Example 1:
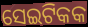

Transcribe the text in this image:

ସେଇଟିକକ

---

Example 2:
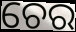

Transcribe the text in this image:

ଚେର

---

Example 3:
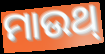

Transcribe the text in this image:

ମାଉଥ୍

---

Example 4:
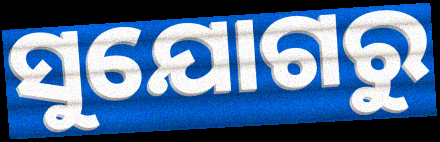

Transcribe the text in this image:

ସୁଯୋଗରୁ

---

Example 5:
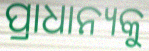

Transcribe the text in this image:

ପ୍ରାଧାନ୍ୟକୁ